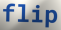
flip